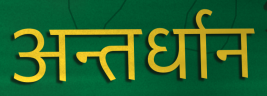
अन्तर्धान